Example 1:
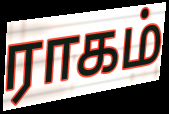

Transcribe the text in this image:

ராகம்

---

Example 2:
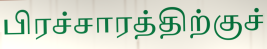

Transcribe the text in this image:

பிரச்சாரத்திற்குச்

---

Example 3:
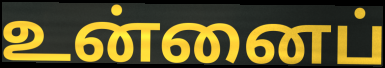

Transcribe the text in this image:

உன்னைப்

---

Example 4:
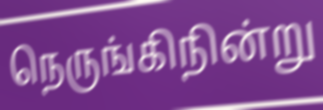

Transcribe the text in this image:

நெருங்கிநின்று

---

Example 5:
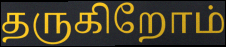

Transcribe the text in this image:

தருகிறோம்